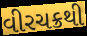
વીરચક્રથી